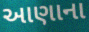
આણાના